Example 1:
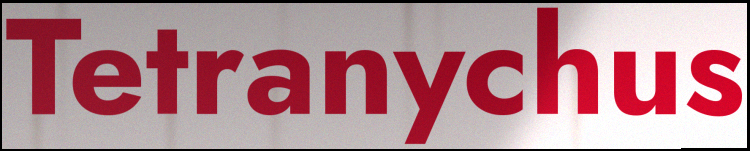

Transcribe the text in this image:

Tetranychus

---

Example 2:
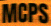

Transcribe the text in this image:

MCPS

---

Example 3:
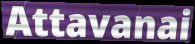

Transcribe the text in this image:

Attavanai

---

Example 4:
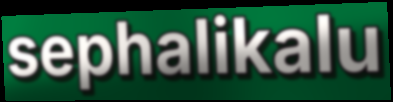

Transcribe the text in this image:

sephalikalu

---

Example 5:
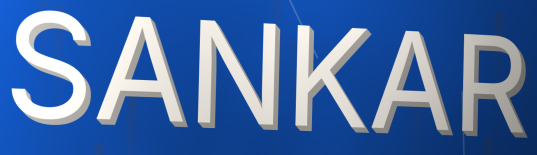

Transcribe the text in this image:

SANKAR